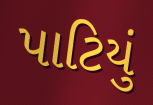
પાટિયું